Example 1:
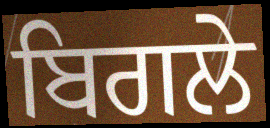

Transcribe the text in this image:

ਬਿਗਲੇ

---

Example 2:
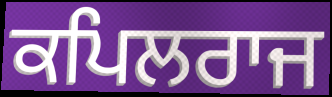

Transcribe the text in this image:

ਕਪਿਲਰਾਜ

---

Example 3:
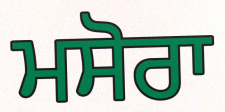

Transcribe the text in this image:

ਮਸੋਰਾ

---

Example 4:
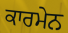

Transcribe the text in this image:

ਕਾਰਮੇਨ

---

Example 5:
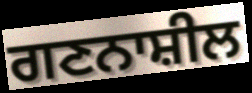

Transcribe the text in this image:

ਗਣਨਾਸ਼ੀਲ